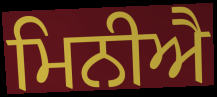
ਮਿਨੀਐ